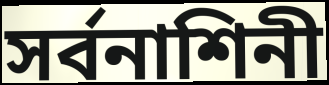
সর্বনাশিনী